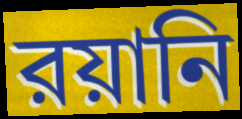
রয়ানি